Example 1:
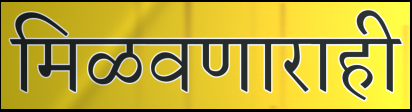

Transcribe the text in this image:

मिळवणाराही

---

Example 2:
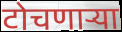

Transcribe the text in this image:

टोचणाऱ्या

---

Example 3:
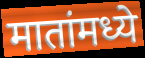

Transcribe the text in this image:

मातांमध्ये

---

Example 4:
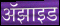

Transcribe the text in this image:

ॲझाइड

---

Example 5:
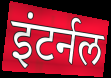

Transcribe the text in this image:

इंटर्नल